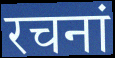
रचनां